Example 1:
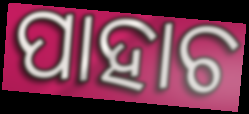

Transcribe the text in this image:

ପାହାଚ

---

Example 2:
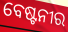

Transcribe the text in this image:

ବେଷ୍ଟନୀର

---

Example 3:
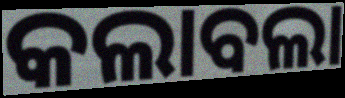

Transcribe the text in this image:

କଲାବଲା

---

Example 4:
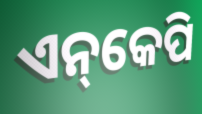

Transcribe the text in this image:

ଏନ୍‌କେପି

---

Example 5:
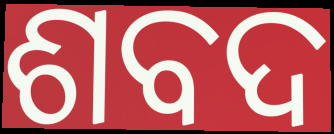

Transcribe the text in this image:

ଶବଦ